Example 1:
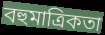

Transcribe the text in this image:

বহুমাত্রিকতা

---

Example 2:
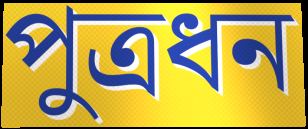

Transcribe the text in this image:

পুত্রধন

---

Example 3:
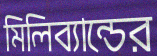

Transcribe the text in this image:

মিলিব্যান্ডের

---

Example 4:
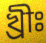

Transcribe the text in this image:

খ্রীঃ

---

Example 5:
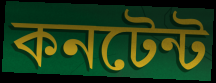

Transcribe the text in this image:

কনটেন্ট